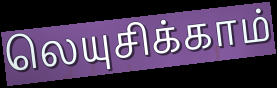
லெயுசிக்காம்